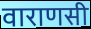
वाराणसी